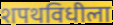
शपथविधीला